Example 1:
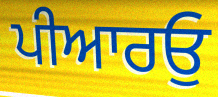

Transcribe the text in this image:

ਪੀਆਰਓੁ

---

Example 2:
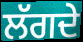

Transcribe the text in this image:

ਲੱਗਦੇ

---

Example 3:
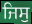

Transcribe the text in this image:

ਜਿਸੁ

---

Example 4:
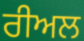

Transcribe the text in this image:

ਰੀਅਲ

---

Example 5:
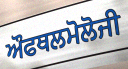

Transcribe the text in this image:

ਔਫਥਲਮੋਲੋਜੀ